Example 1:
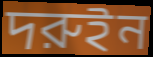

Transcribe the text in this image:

দরুইন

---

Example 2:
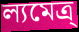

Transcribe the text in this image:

ল্যমেত্র্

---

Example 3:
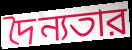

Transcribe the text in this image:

দৈন্যতার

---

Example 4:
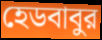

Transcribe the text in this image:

হেডবাবুর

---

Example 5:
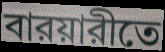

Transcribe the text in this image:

বারয়ারীতে